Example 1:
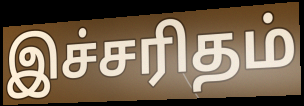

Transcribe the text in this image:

இச்சரிதம்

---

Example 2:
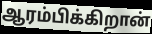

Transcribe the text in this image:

ஆரம்பிக்கிறான்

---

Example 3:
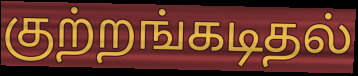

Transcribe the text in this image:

குற்றங்கடிதல்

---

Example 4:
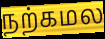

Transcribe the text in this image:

நற்கமல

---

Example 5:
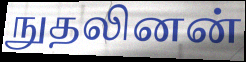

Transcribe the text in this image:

நுதலினன்